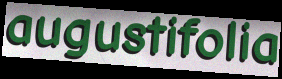
augustifolia